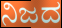
ನಿಜದ